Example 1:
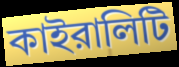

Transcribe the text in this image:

কাইরালিটি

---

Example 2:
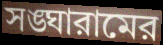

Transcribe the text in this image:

সঙ্ঘারামের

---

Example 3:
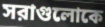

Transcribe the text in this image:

সরাগুলোকে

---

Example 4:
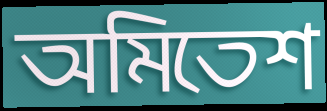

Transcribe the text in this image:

অমিতেশ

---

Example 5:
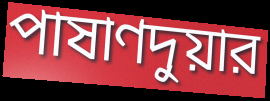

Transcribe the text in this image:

পাষাণদুয়ার